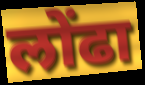
लोंढा